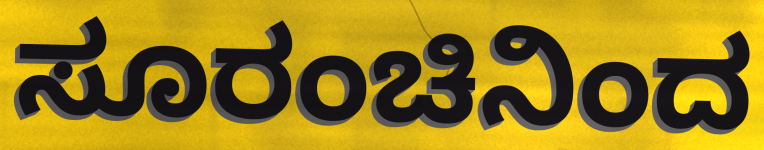
ಸೂರಂಚಿನಿಂದ